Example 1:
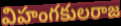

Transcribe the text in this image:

విహంగకులరాజ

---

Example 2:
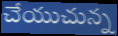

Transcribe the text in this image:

చేయుచున్న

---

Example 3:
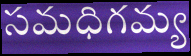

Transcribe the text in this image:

సమధిగమ్య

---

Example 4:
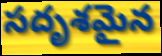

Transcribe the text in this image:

సదృశమైన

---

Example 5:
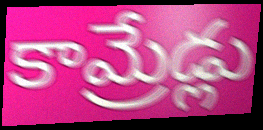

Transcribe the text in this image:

కామ్రేడ్లు